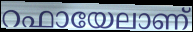
റഫായേലാണ്